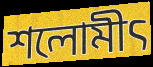
শলোমীৎ